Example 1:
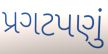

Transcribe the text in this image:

પ્રગટપણું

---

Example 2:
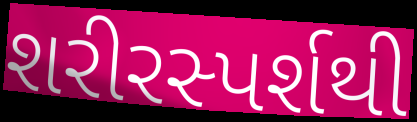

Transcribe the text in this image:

શરીરસ્પર્શથી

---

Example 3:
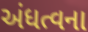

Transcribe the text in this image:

અંધત્વના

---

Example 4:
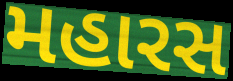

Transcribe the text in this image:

મહારસ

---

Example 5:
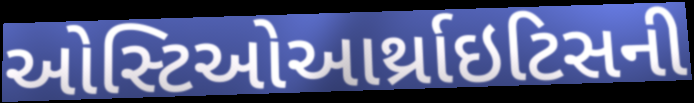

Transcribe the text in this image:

ઓસ્ટિઓઆર્થ્રાઇટિસની